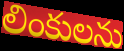
లింకులను